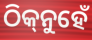
ଠିକ୍‌ନୁହେଁ